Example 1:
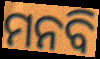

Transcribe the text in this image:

ମନବି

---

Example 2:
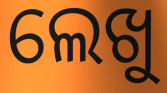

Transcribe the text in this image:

ଲେଖୁ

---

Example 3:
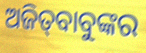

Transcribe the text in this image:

ଅଜିତ୍‍ବାବୁଙ୍କର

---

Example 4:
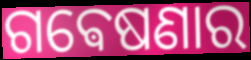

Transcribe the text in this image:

ଗଵେଷଣାର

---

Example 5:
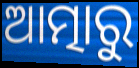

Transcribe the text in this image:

ଆତ୍ମାରୁ